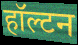
हॉल्टन